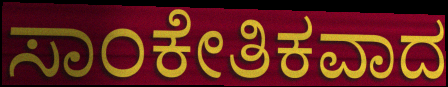
ಸಾಂಕೇತಿಕವಾದ